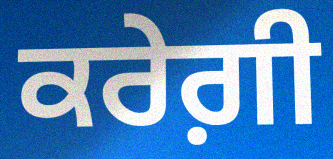
ਕਰੇਗ਼ੀ